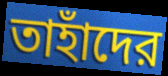
তাহাঁদের